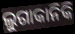
ଲୁଗାକାନିକି